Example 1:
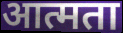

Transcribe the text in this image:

आत्मता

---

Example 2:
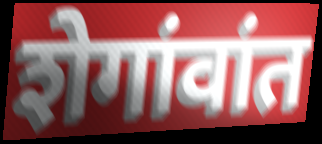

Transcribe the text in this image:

शेगांवांत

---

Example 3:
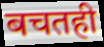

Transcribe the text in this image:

बचतही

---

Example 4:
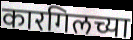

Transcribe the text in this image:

कारगिलच्या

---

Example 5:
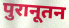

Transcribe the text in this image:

पुरानूतन